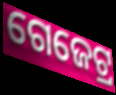
ଗେଜେଟ୍ର